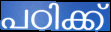
പഠിക്ക്